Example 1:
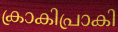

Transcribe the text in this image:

ക്രാകിപ്രാകി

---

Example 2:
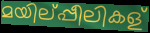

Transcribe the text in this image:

മയില്പ്പീലികള്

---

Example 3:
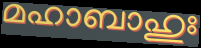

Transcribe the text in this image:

മഹാബാഹുഃ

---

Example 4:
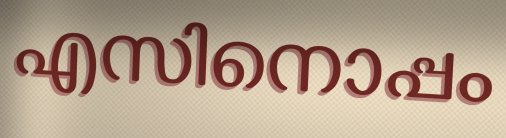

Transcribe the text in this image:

എസിനൊപ്പം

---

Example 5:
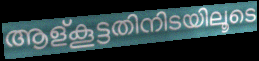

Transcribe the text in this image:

ആള്കൂട്ടതിനിടയിലൂടെ